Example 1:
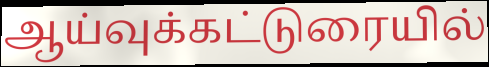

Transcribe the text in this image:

ஆய்வுக்கட்டுரையில்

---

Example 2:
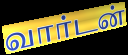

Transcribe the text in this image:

வார்டன்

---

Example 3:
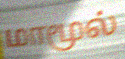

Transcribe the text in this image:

மாமூல்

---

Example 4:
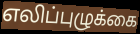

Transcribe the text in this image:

எலிப்புழுக்கை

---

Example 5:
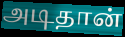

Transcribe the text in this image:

அடிதான்